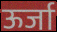
ऊर्जा